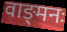
वाङ्मनः